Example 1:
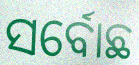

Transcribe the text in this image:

ସର୍ବୋଛ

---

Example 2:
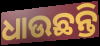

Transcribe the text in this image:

ଧାଉଛନ୍ତି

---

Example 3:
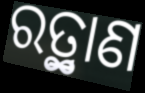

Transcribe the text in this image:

ରତ୍ର୍ଥାଣ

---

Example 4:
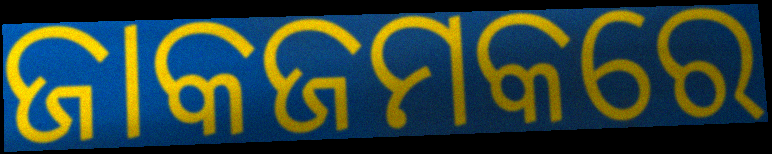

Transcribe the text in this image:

ଜାକଜମକରେ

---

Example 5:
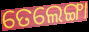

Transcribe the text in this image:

ତେଲେଙ୍ଗା